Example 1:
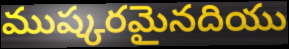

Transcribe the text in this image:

ముష్కరమైనదియు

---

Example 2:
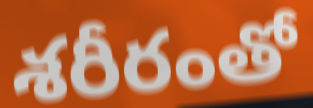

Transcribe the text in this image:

శరీరంతో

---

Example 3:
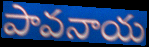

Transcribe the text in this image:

పావనాయ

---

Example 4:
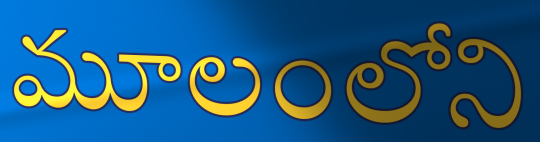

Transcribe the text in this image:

మూలంలోని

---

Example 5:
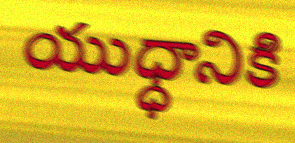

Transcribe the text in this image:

యుధ్ధానికి